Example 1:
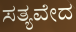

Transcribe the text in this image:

ಸತ್ಯವೇದ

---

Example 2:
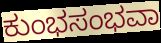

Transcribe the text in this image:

ಕುಂಭಸಂಭವಾ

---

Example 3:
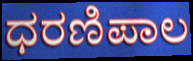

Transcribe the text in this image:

ಧರಣಿಪಾಲ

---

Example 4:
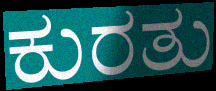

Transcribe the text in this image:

ಕುರತು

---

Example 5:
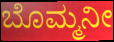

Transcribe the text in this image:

ಬೊಮ್ಮನೀ